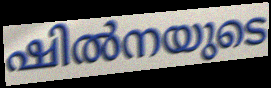
ഷിൽനയുടെ